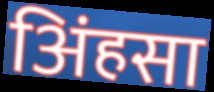
अिंहसा